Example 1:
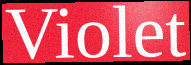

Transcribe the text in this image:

Violet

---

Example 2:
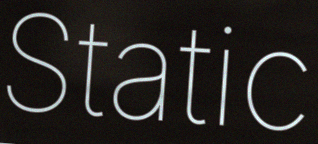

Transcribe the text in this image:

Static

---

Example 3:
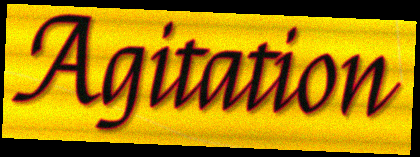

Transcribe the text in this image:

Agitation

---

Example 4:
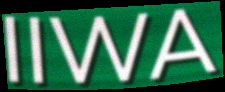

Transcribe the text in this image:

IIWA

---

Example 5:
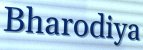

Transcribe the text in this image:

Bharodiya